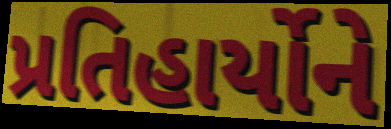
પ્રતિહાર્યોને